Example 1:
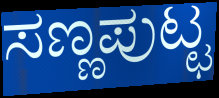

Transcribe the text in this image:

ಸಣ್ಣಪುಟ್ಟ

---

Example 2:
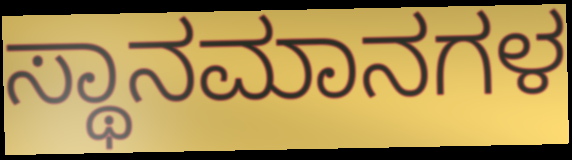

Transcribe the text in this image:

ಸ್ಥಾನಮಾನಗಳ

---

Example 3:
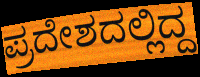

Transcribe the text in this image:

ಪ್ರದೇಶದಲ್ಲಿದ್ದ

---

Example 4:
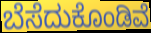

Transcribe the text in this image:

ಬೆಸೆದುಕೊಂಡಿವೆ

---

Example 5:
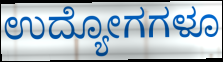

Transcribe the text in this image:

ಉದ್ಯೋಗಗಳೂ